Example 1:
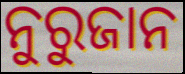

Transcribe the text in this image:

ନୁରୁଜାନ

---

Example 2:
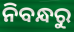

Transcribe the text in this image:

ନିବନ୍ଧରୁ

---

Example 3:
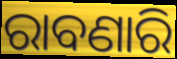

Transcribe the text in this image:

ରାବଣାରି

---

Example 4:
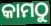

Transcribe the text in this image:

କାମଠୁ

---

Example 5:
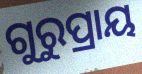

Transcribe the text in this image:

ଗୁରୁପ୍ରାୟ